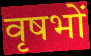
वृषभों